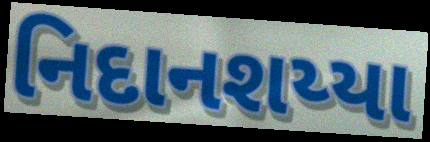
નિદાનશય્યા